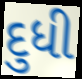
દુધી